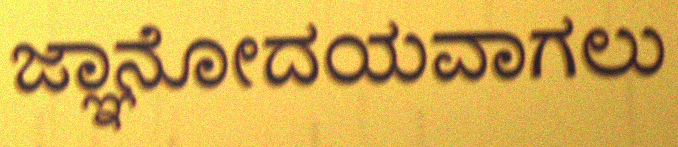
ಜ್ಞಾನೋದಯವಾಗಲು